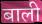
बाली